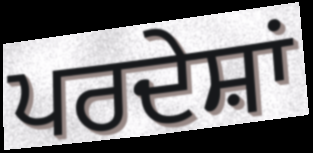
ਪਰਦੇਸ਼ਾਂ